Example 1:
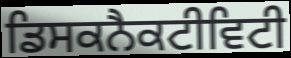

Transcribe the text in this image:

ਡਿਸਕਨੈਕਟੀਵਿਟੀ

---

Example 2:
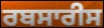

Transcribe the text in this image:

ਰਬਸਾਰੀਸ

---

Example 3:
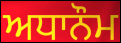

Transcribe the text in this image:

ਅਧਾਨੌਮ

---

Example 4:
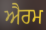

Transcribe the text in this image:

ਐਰਮ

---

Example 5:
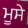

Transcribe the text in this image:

ਮੂਸੇ